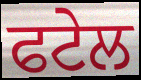
ਫਟੇਲ